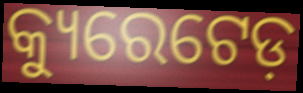
କ୍ୟୁରେଟେଡ଼